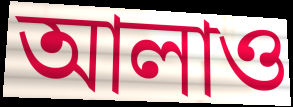
আলাও